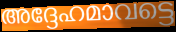
അദ്ദേഹമാവട്ടെ